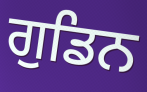
ਗੁਡਿਨ